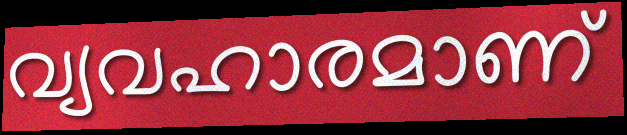
വ്യവഹാരമാണ്